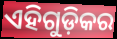
ଏହିଗୁଡ଼ିକର